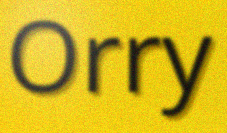
Orry